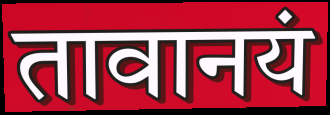
तावानयं